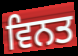
ਵਿਨਤ